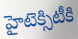
హైటెక్సిటీకి